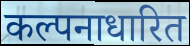
कल्पनाधारित